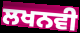
ਲਖਨਵੀ